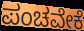
ಪಂಚವೇಕೆ